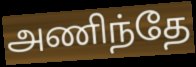
அணிந்தே